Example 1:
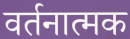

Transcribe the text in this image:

वर्तनात्मक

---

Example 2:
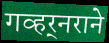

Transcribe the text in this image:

गव्हर्नराने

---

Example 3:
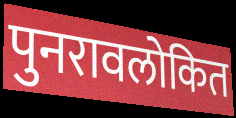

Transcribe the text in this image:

पुनरावलोकित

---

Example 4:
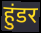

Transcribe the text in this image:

हुंडर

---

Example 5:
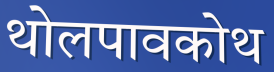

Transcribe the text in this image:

थोलपावकोथ